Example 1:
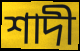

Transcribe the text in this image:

শাদী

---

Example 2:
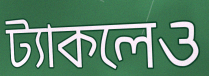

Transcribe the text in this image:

ট্যাকলেও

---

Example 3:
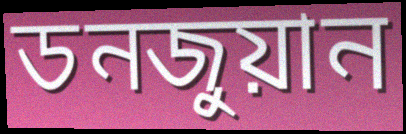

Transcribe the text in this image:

ডনজুয়ান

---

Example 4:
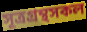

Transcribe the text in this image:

সূত্রগ্রন্থসকল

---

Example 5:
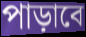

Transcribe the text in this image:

পাড়াবে